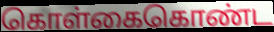
கொள்கைகொண்ட